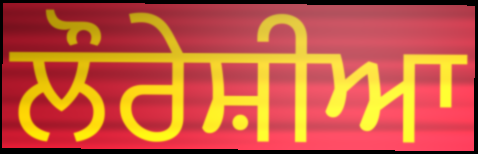
ਲੌਰੇਸ਼ੀਆ